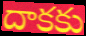
దాకకు